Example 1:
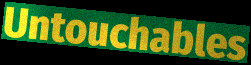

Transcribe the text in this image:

Untouchables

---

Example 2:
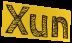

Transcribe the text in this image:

Xun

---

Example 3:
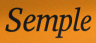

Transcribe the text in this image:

Semple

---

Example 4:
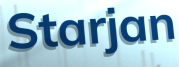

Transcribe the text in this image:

Starjan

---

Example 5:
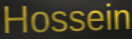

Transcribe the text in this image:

Hossein